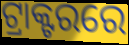
ଟ୍ରାକ୍ଟରରେ